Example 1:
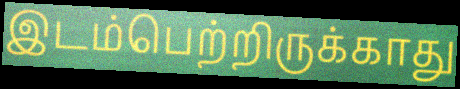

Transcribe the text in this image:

இடம்பெற்றிருக்காது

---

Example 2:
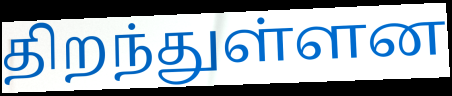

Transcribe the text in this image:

திறந்துள்ளன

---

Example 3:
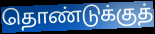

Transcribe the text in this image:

தொண்டுக்குத்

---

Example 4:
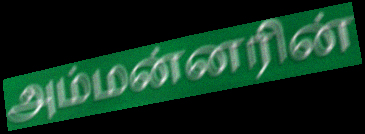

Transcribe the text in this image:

அம்மன்னரின்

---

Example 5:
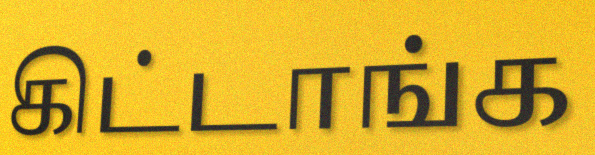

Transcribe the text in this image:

கிட்டாங்க